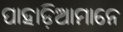
ପାହାଡ଼ିଆମାନେ